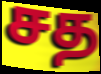
சத